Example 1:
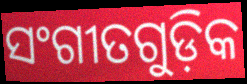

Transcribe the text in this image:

ସଂଗୀତଗୁଡ଼ିକ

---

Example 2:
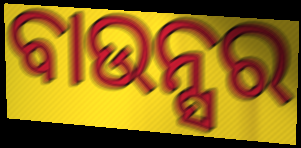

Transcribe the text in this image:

ବାଉନ୍ସର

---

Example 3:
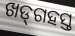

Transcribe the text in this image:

ଖଡ୍‌ଗହସ୍ତ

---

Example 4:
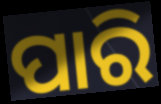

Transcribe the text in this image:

ପାରି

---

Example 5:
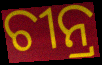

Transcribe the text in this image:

ଚୀନ୍ର